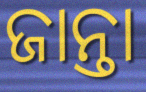
ଜାନ୍ତା